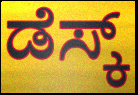
ಡೆಸ್ಕ್